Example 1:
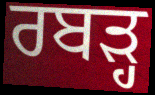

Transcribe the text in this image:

ਰਬੜ੍ਹ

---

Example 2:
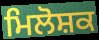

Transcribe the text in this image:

ਮਿਲੋਸ਼ਕ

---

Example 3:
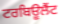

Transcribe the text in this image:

ਟਰਬਿਊਲੈਂਟ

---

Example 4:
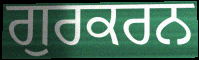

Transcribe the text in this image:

ਗੁਰਕਰਨ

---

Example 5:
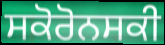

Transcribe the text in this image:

ਸਕੋਰੋਨਸਕੀ